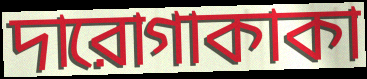
দারোগাকাকা